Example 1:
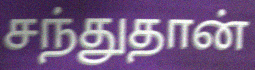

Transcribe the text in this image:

சந்துதான்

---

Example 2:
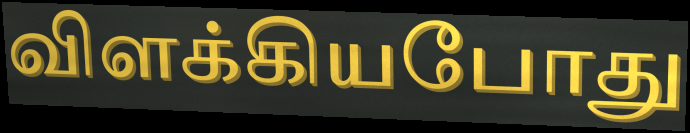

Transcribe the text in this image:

விளக்கியபோது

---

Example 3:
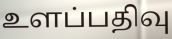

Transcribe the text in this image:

உளப்பதிவு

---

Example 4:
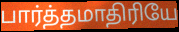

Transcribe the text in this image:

பார்த்தமாதிரியே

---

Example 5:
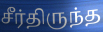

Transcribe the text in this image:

சீர்திருந்த